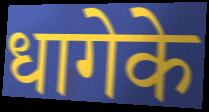
धागेके